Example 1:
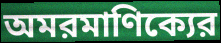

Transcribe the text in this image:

অমরমাণিক্যের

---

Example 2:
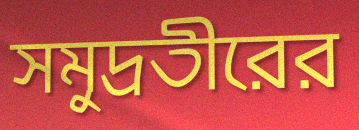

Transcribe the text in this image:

সমুদ্রতীরের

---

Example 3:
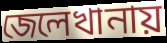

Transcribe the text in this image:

জেলেখানায়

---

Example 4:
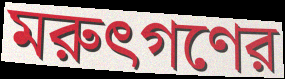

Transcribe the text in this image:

মরুৎগণের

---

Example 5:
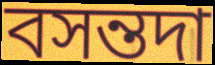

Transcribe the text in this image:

বসন্তদা